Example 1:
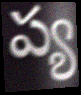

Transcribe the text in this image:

ప్య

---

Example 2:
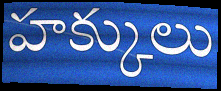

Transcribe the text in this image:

హక్కులు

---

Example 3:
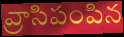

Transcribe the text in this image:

వ్రాసిపంపిన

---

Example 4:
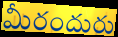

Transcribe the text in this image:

మీరందురు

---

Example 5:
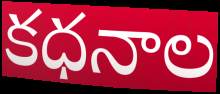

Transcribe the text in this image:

కధనాల